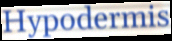
Hypodermis